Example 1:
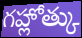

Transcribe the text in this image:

గహ్లోత్కు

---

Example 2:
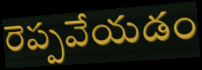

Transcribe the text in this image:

రెప్పవేయడం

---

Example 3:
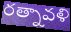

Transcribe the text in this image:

రత్నావళి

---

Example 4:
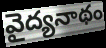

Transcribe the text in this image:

వైద్యనాథం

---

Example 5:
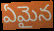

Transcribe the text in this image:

ఏమైన